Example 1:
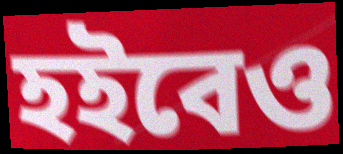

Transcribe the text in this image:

হইবেও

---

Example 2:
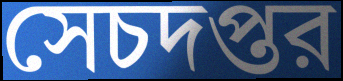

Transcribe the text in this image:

সেচদপ্তর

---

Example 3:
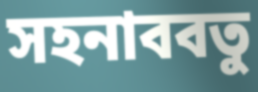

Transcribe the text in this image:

সহনাববতু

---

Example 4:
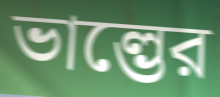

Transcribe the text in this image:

ভাল্ভের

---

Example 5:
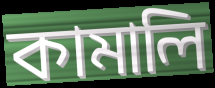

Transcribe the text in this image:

কামালি